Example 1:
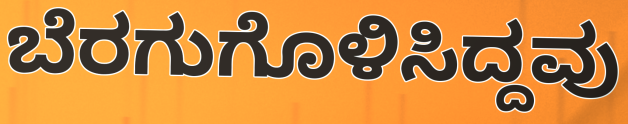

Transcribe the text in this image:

ಬೆರಗುಗೊಳಿಸಿದ್ದವು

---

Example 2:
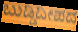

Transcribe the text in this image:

ಬುಡ್ಡಿದೀಪದ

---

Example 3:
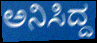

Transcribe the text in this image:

ಅನಿಸಿದ್ದ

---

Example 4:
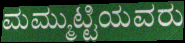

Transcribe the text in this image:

ಮಮ್ಮುಟ್ಟಿಯವರು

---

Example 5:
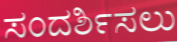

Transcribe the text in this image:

ಸಂದರ್ಶಿಸಲು